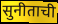
सुनीताची